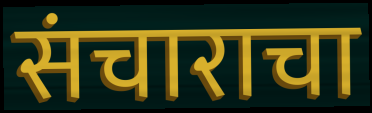
संचाराचा